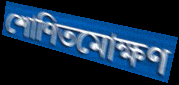
শোণিতমোক্ষণ